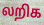
லறிக